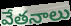
వేతనాలు